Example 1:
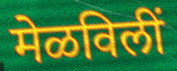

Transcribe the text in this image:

मेळविलीं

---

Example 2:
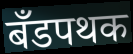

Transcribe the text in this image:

बँडपथक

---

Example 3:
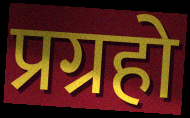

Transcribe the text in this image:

प्रग्रहो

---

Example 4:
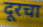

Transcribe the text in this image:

दूरचा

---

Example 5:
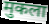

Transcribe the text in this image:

मुकला